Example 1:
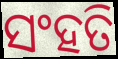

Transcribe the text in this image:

ସଂହତି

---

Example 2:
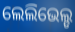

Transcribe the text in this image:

ଲେଲିଭେଲ୍ଡ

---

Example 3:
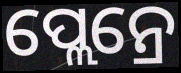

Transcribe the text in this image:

ପ୍ଲେନ୍ରେ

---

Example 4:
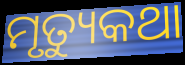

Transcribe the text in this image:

ମୃତ୍ୟୁକଥା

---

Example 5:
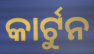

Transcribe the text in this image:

କାର୍ଟୁନ